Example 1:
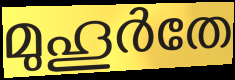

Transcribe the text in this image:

മുഹൂർതേ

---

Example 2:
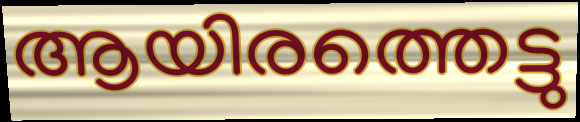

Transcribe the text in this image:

ആയിരത്തെട്ടു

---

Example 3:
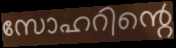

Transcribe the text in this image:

സോഹറിന്റെ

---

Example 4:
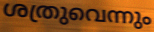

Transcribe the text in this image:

ശത്രുവെന്നും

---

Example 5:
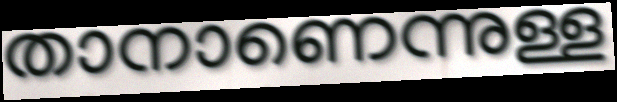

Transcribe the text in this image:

താനാണെന്നുള്ള